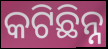
କଟିଛିନ୍ନ